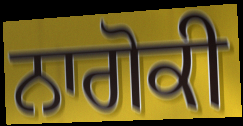
ਨਾਗੋਕੀ